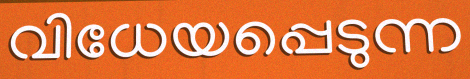
വിധേയപ്പെടുന്ന